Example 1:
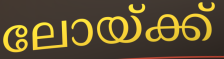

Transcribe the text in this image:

ലോയ്ക്ക്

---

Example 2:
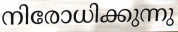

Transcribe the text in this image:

നിരോധിക്കുന്നു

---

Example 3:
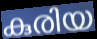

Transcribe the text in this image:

കുരിയ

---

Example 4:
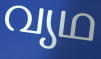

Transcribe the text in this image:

വ്യഥ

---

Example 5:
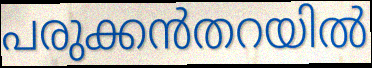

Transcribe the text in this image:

പരുക്കൻതറയിൽ